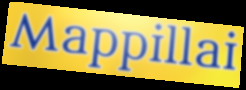
Mappillai